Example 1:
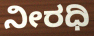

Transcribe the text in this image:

ನೀರಧಿ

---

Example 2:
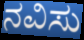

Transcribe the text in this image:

ನವಿಸು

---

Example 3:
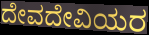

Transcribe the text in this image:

ದೇವದೇವಿಯರ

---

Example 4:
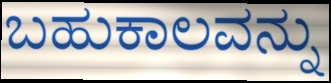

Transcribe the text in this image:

ಬಹುಕಾಲವನ್ನು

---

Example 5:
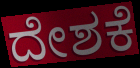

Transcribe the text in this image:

ದೇಶಕೆ